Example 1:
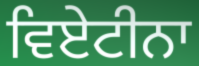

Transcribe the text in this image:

ਵਿਏਟੀਨਾ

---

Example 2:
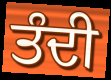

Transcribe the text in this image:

ਤੰਦੀ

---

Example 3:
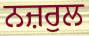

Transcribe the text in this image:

ਨਜ਼ਰੁਲ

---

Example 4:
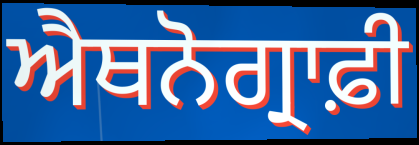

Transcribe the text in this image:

ਐਥਨੋਗ੍ਰਾਫ਼ੀ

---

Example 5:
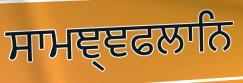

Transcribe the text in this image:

ਸਾਮਞ੍ਞਫਲਾਨਿ